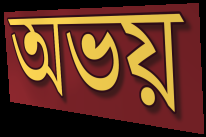
অভয়